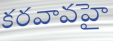
కరవావహై